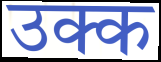
उक्क